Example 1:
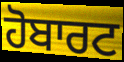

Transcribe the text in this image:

ਹੋਬਾਰਟ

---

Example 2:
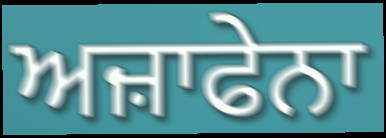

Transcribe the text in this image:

ਅਜ਼ਾਫੇਨਾ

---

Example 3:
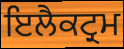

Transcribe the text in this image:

ਇਲੈਕਟ੍ਰਮ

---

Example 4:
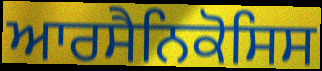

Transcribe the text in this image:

ਆਰਸੈਨਿਕੋਸਿਸ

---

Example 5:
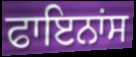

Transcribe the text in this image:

ਫਾਇਨਾਂਸ